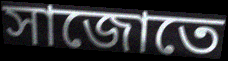
সাজোতে